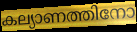
കല്യാണത്തിനോ